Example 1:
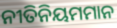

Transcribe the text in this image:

ନୀତିନିୟମମାନ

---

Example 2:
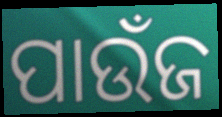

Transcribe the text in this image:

ପାଉଁଜ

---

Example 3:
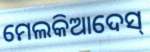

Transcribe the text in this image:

ମେଲକିଆଦେସ୍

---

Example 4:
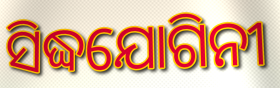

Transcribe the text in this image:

ସିଦ୍ଧଯୋଗିନୀ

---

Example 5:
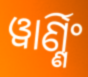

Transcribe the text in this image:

ୱାର୍ଣ୍ଣିଂ